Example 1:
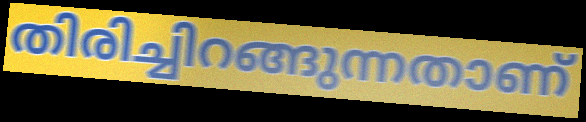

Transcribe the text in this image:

തിരിച്ചിറങ്ങുന്നതാണ്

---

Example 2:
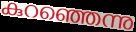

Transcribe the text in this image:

കുറഞ്ഞെന്നു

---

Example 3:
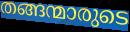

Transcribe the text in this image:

തങ്ങന്മാരുടെ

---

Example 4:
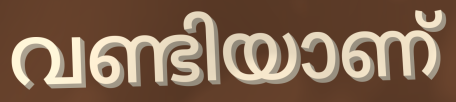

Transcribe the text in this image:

വണ്ടിയാണ്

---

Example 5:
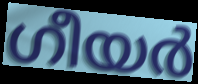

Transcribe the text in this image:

ഗീയർ